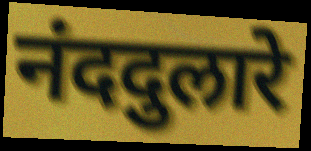
नंददुलारे